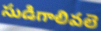
సుడిగాలివలె